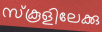
സ്കൂളിലേക്കു